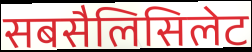
सबसैलिसिलेट